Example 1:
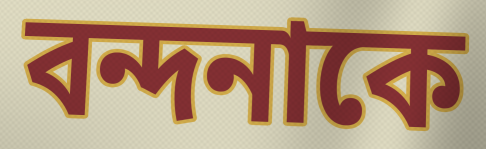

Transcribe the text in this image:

বন্দনাকে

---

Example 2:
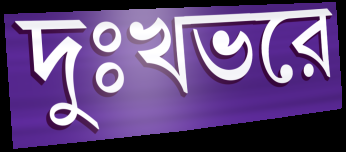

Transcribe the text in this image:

দুঃখভরে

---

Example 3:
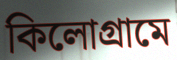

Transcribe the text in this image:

কিলোগ্রামে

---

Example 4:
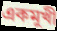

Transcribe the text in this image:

একমুখী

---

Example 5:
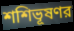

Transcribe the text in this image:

শশিভূষণর